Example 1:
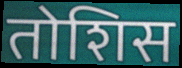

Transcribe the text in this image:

तोशिस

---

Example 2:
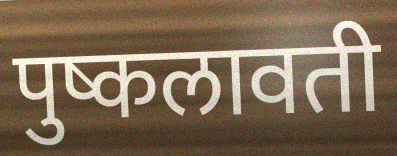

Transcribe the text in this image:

पुष्कलावती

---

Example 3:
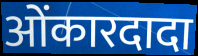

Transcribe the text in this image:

ओंकारदादा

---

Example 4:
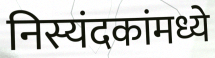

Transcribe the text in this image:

निस्यंदकांमध्ये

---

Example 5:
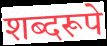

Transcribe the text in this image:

शब्दरूपे